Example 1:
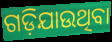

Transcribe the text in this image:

ଗଡ଼ିଯାଉଥିବା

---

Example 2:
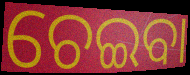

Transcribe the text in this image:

ଚେଇବା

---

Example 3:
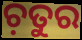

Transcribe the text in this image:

ଚ଼ତୁର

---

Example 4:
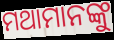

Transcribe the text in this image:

ମଥାମାନଙ୍କୁ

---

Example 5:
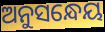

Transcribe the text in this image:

ଅନୁସନ୍ଧେୟ